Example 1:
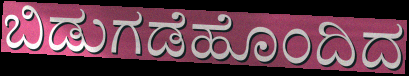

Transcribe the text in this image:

ಬಿಡುಗಡೆಹೊಂದಿದ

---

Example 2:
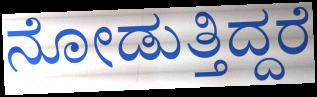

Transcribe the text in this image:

ನೋಡುತ್ತಿದ್ದರೆ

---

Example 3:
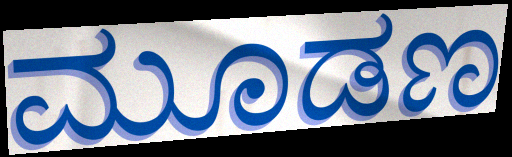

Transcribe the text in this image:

ಮೂಡಣ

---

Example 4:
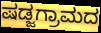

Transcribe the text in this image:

ಷಡ್ಜಗ್ರಾಮದ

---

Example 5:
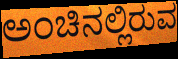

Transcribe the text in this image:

ಅಂಚಿನಲ್ಲಿರುವ